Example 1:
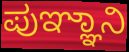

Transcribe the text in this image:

ಪುಞ್ಞಾನಿ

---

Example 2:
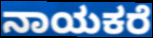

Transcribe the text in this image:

ನಾಯಕರೆ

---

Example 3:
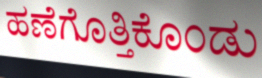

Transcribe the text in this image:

ಹಣೆಗೊತ್ತಿಕೊಂಡು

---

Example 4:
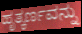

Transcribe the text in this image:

ಹೃತ್ಕರ್ಣವನ್ನು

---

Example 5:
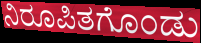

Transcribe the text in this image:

ನಿರೂಪಿತಗೊಂಡು